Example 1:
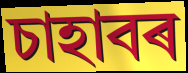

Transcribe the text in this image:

চাহাবৰ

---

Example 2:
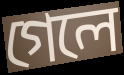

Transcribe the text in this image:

গেলে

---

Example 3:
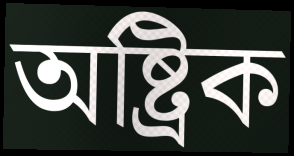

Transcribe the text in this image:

অষ্ট্ৰিক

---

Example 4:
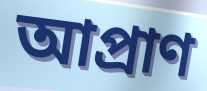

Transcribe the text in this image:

আপ্ৰাণ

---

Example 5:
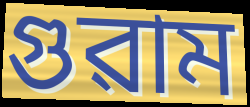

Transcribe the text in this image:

গুৱাম